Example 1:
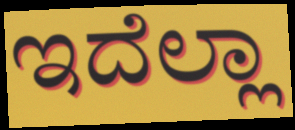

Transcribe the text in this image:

ಇದೆಲ್ಲಾ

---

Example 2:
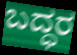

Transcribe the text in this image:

ಬದ್ಧರ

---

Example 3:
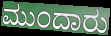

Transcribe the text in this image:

ಮುಂದಾರು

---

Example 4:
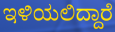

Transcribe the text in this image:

ಇಳಿಯಲಿದ್ದಾರೆ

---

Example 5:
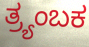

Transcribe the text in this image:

ತ್ರ್ಯಂಬಕ